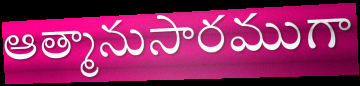
ఆత్మానుసారముగా